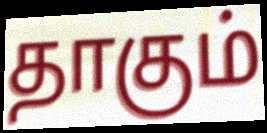
தாகும்